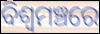
ବିଶ୍ୱମଞ୍ଚରେ